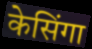
केसिंगा